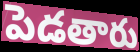
పెడతారు